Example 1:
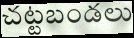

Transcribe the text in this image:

చట్టబండలు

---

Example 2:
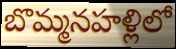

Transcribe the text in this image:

బొమ్మనహళ్లిలో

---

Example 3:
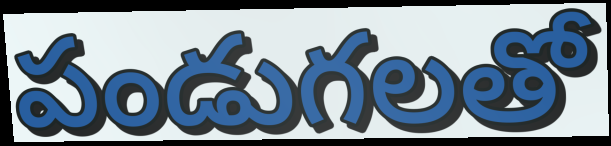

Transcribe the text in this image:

పండుగలతో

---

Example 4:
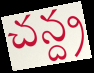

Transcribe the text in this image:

చన్ద్ర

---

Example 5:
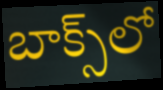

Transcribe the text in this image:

బాక్స్‌లో